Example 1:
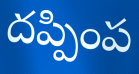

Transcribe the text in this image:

దప్పింప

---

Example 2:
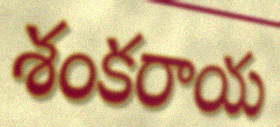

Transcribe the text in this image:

శంకరాయ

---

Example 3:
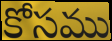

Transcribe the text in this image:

కోసము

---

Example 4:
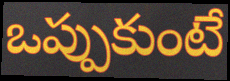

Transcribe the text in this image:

ఒప్పుకుంటే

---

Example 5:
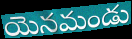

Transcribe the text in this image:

యెనమండు